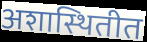
अशास्थितीत